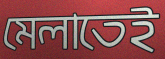
মেলাতেই